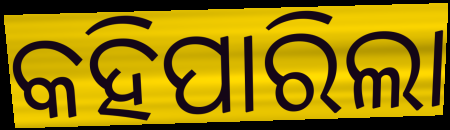
କହିପାରିଲା